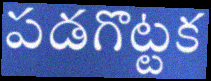
పడగొట్టక